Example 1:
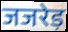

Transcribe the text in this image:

जजरेड़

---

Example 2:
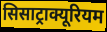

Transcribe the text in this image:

सिसाट्राक्यूरियम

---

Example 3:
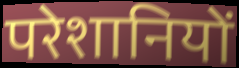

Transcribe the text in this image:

परेशानियों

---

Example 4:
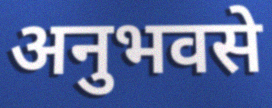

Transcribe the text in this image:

अनुभवसे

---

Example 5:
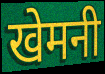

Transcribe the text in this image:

खेमनी